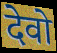
देवो